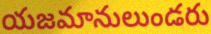
యజమానులుండరు